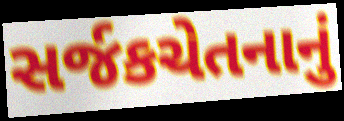
સર્જકચેતનાનું